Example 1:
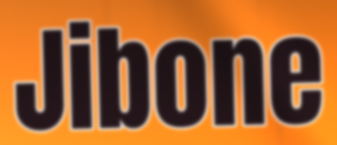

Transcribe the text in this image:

Jibone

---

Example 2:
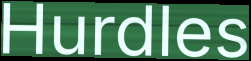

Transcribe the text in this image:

Hurdles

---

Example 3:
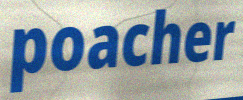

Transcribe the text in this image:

poacher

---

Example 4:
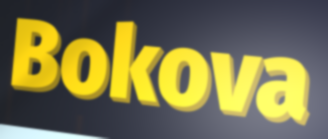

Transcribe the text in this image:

Bokova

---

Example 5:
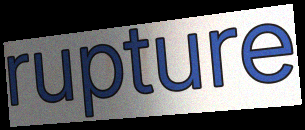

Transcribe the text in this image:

rupture